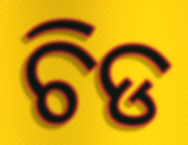
ଚିଡ